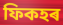
ফিকহৰ